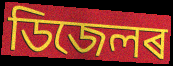
ডিজেলৰ